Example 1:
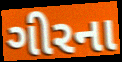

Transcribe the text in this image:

ગીરના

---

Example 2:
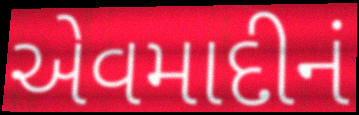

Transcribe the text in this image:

એવમાદીનં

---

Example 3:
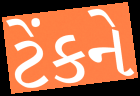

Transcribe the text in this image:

ટેંકને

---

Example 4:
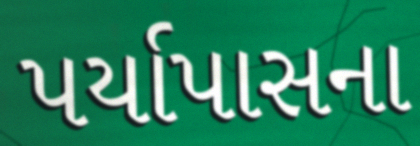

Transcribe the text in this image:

પર્યાપાસના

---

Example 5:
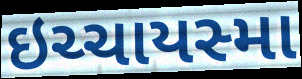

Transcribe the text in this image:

ઇચ્ચાયસ્મા